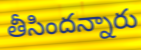
తీసిందన్నారు